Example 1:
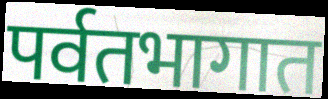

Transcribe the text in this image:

पर्वतभागात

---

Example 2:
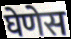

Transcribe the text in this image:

घेणेस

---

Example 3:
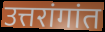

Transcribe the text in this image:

उत्तरांगांत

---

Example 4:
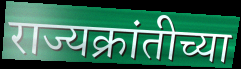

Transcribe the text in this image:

राज्यक्रांतीच्या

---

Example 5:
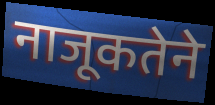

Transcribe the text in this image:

नाजूकतेने